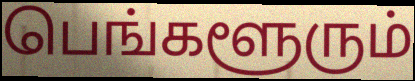
பெங்களூரும்